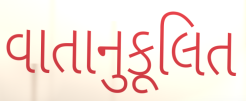
વાતાનુકૂલિત